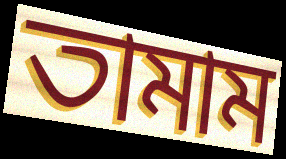
তামাম